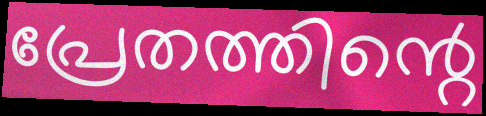
പ്രേതത്തിന്റെ